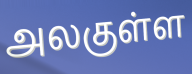
அலகுள்ள